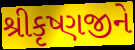
શ્રીકૃષ્ણજીને